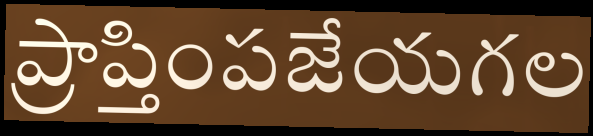
ప్రాప్తింపజేయగల